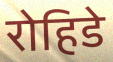
रोहिडे